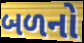
બળનો